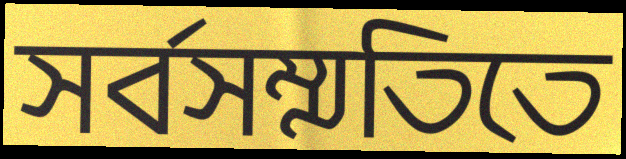
সর্বসম্মতিতে